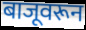
बाजूवरून